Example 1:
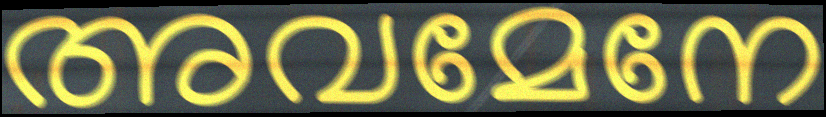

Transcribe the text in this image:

അവമേനേ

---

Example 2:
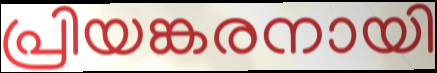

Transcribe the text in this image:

പ്രിയങ്കരനായി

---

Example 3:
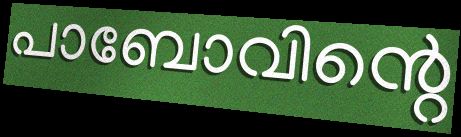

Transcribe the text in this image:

പാബോവിന്റെ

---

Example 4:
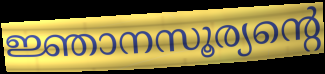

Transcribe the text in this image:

ജ്ഞാനസൂര്യന്റെ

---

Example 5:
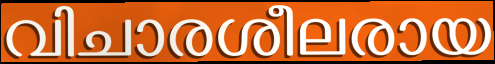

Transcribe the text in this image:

വിചാരശീലരായ